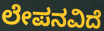
ಲೇಪನವಿದೆ